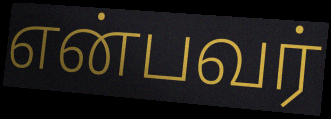
என்பவர்